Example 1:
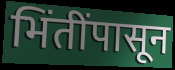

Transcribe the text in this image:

भिंतींपासून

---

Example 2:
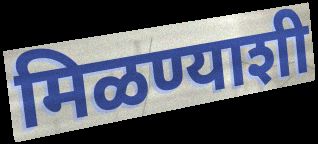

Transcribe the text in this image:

मिळण्याशी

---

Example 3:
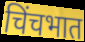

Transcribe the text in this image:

चिंचभात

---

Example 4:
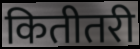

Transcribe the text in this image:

कितीतरी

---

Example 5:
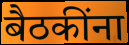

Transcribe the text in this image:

बैठकींना